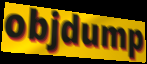
objdump